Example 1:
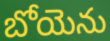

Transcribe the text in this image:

బోయెను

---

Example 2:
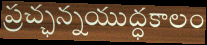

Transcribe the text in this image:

ప్రచ్ఛన్నయుద్ధకాలం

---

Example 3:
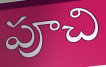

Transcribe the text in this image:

పూచి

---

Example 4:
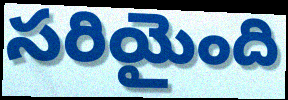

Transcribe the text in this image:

సరియైంది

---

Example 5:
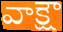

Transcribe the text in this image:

వాక్షౌ